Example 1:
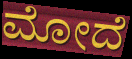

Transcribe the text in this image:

ಮೋದೆ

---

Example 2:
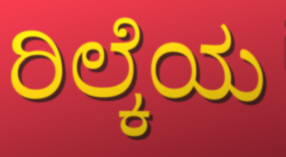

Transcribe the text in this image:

ರಿಲ್ಕೆಯ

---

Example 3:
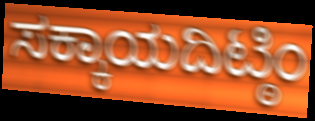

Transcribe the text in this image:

ಸಕ್ಕಾಯದಿಟ್ಠಿಂ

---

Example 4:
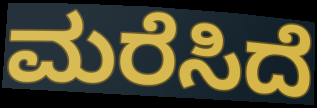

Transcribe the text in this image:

ಮರೆಸಿದೆ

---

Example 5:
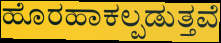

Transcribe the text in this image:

ಹೊರಹಾಕಲ್ಪಡುತ್ತವೆ